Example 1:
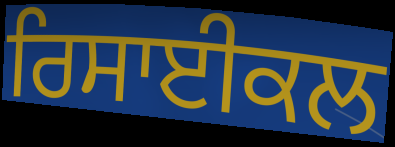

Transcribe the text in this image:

ਰਿਸਾਈਕਲ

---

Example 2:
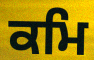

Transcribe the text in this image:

ਕਮਿ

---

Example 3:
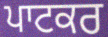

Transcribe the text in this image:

ਪਾਟਕਰ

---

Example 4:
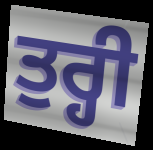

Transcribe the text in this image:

ਤੁਰ੍ਹੀ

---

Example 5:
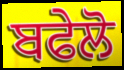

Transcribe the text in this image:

ਬਫੇਲੋ